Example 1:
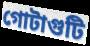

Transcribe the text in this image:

গোটাগুটি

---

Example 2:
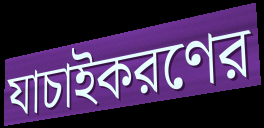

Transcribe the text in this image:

যাচাইকরণের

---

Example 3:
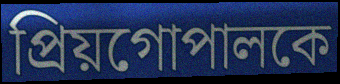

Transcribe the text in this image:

প্রিয়গোপালকে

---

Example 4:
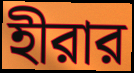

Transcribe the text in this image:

হীরার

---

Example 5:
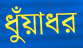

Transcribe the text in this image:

ধুঁয়াধর